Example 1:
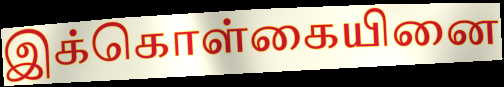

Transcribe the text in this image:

இக்கொள்கையினை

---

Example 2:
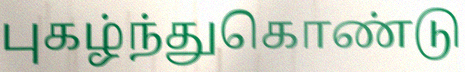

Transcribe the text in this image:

புகழ்ந்துகொண்டு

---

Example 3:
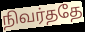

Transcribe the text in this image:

நிவர்ததே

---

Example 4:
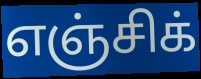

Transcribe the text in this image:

எஞ்சிக்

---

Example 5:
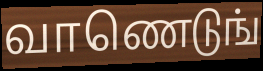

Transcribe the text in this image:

வாணெடுங்